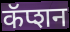
कॅप्शन